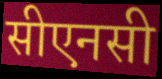
सीएनसी